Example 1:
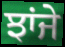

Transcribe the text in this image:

ਝਾਂਜੇ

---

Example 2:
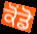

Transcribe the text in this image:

ਕੋਂਡੋ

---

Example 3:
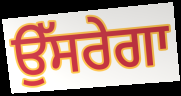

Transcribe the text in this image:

ਉੱਸਰੇਗਾ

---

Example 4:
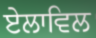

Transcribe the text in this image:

ਏਲਾਵਿਲ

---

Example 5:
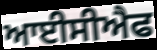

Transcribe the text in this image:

ਆਈਸੀਐਫ